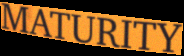
MATURITY